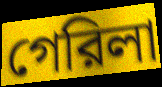
গেরিলা